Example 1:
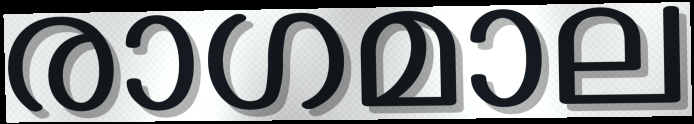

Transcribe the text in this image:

രാഗമാല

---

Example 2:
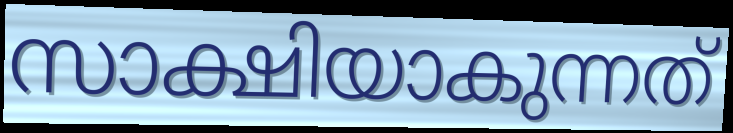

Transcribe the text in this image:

സാക്ഷിയാകുന്നത്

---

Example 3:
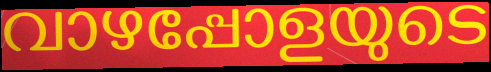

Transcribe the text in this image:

വാഴപ്പോളയുടെ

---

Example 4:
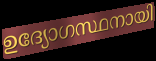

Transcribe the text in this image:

ഉദ്യോഗസ്ഥനായി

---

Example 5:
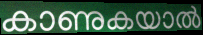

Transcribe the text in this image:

കാണുകയാൽ